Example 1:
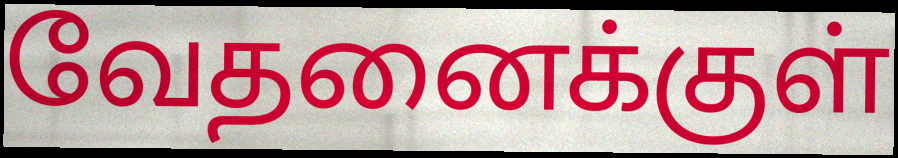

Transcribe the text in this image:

வேதனைக்குள்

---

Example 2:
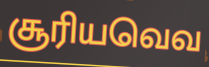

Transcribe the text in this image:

சூரியவெவ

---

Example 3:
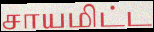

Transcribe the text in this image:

சாயமிட்ட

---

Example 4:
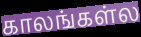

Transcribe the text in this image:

காலங்கள்ல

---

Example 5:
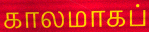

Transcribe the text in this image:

காலமாகப்